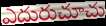
ఎదురుచూచు